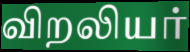
விறலியர்